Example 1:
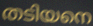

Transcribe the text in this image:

തടിയനെ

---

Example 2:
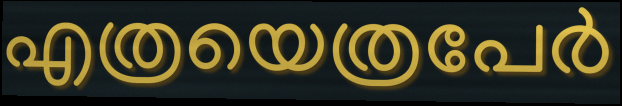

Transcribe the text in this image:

എത്രയെത്രപേർ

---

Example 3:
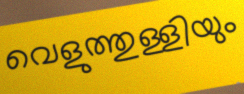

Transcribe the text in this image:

വെളുത്തുള്ളിയും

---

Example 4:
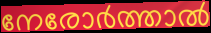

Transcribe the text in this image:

നേരോർത്താൽ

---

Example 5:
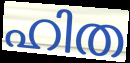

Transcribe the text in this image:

ഹിത